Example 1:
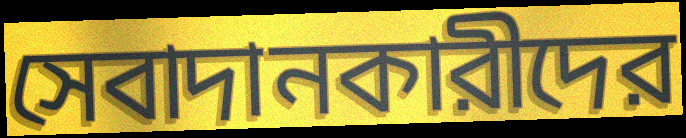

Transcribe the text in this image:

সেবাদানকারীদের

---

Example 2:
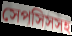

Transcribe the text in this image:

সেপসিসসহ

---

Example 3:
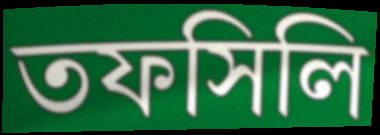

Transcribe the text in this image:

তফসিলি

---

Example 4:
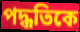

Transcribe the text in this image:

পদ্ধতিকে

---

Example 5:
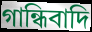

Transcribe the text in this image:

গান্ধিবাদি